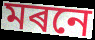
মৰনে